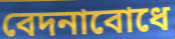
বেদনাবোধে